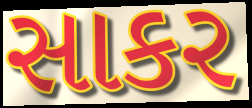
સાકર